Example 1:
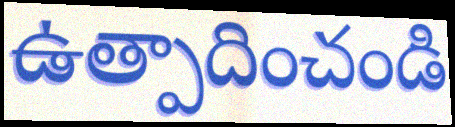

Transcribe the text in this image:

ఉత్పాదించండి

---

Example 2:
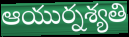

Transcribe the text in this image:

ఆయుర్నశ్యతి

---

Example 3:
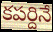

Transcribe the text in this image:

కపర్దినే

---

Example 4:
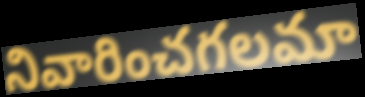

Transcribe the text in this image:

నివారించగలమా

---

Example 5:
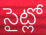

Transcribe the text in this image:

సైట్లో